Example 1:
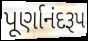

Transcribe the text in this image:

પૂર્ણાનંદરૂપ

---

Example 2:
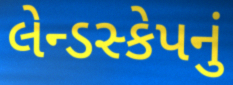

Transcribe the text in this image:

લેન્ડસ્કેપનું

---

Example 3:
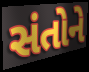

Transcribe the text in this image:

સંતોને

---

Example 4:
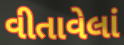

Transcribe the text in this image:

વીતાવેલાં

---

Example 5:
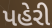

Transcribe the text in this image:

પહેરી